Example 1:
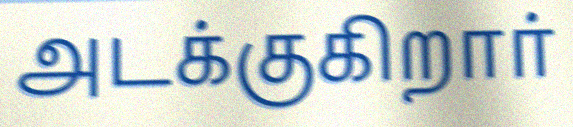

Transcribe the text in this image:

அடக்குகிறார்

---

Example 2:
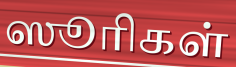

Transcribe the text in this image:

ஸூரிகள்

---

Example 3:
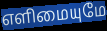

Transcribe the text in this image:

எளிமையுமே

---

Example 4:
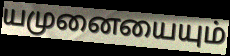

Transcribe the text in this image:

யமுனையையும்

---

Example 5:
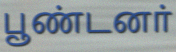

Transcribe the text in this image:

பூண்டனர்